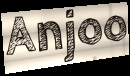
Anjoo